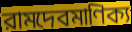
রামদেবমাণিক্য